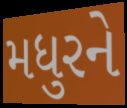
મધુરને